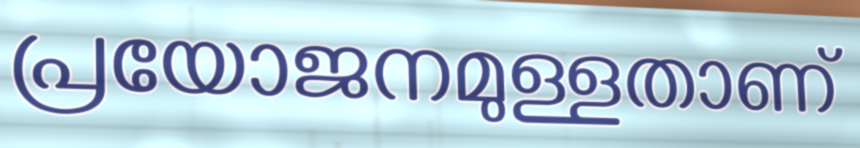
പ്രയോജനമുള്ളതാണ്